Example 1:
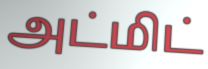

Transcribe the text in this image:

அட்மிட்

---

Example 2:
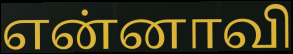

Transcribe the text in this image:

என்னாவி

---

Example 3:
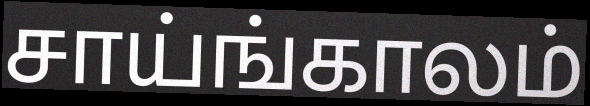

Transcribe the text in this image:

சாய்ங்காலம்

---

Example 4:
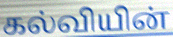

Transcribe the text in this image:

கல்வியின்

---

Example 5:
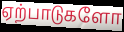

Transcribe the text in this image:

ஏற்பாடுகளோ